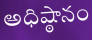
అధిష్ఠానం